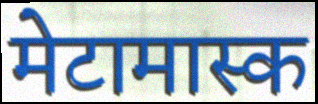
मेटामास्क